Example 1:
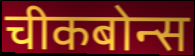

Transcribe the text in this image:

चीकबोन्स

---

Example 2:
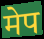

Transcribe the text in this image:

मेप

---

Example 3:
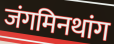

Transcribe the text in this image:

जंगमिनथांग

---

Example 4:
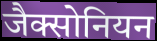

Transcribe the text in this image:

जैक्सोनियन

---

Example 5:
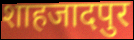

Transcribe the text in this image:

शाहजादपुर